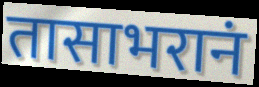
तासाभरानं